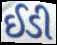
ઈડી